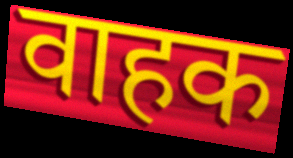
वाहक